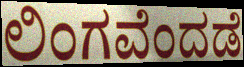
ಲಿಂಗವೆಂದಡೆ